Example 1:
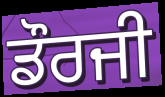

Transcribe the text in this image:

ਡੌਰਜੀ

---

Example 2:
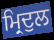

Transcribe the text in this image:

ਮ੍ਰਿਦੁਲ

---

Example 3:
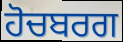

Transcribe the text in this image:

ਹੋਚਬਰਗ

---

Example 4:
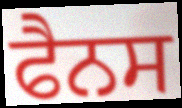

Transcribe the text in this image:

ਫੈਨਸ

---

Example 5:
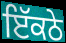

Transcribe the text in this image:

ਇੱਕਠੇ